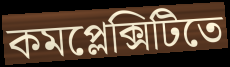
কমপ্লেক্সিটিতে